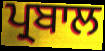
ਪ੍ਰਬਾਲ